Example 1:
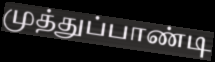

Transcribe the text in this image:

முத்துப்பாண்டி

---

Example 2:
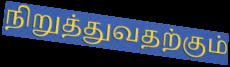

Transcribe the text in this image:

நிறுத்துவதற்கும்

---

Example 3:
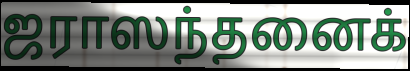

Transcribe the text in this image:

ஜராஸந்தனைக்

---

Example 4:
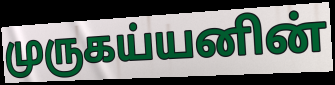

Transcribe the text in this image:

முருகய்யனின்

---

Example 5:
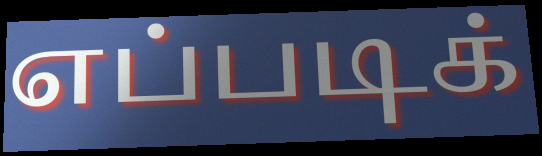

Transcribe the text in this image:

எப்படிக்